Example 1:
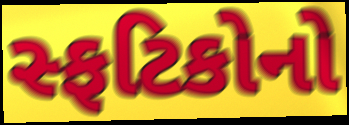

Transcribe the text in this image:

સ્ફટિકોનો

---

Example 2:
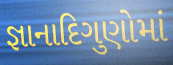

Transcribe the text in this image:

જ્ઞાનાદિગુણોમાં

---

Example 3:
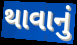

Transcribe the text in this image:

થાવાનું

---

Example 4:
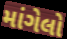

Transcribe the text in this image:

માંગેલો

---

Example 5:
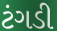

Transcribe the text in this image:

ટંગડી